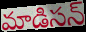
మాడిసన్